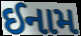
ઈનામ